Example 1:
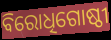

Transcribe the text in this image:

ବିରୋଧିଗୋଷ୍ଠୀ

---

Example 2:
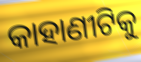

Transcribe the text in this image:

କାହାଣୀଟିକୁ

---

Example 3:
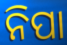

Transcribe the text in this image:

ନିପା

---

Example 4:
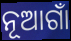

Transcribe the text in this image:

ନୂଆଗାଁ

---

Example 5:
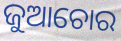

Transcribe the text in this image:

ଜୁଆଚୋର